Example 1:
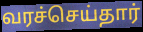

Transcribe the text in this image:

வரச்செய்தார்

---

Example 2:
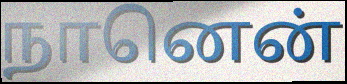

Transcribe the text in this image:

நானென்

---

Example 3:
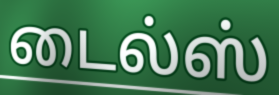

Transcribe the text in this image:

டைல்ஸ்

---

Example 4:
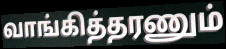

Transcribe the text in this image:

வாங்கித்தரணும்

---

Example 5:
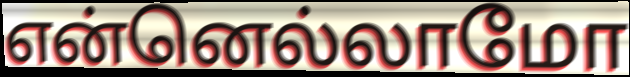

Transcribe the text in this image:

என்னெல்லாமோ